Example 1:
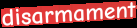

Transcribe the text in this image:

disarmament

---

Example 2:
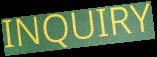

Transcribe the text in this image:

INQUIRY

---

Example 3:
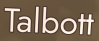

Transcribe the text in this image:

Talbott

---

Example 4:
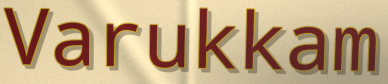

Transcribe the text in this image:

Varukkam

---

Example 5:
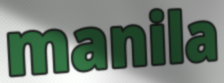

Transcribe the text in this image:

manila